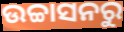
ଉଚ୍ଚାସନରୁ